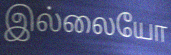
இல்லையோ